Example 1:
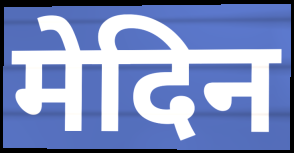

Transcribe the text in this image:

मेदिन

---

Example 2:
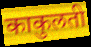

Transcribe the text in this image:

काकुलती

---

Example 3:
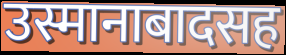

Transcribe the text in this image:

उस्मानाबादसह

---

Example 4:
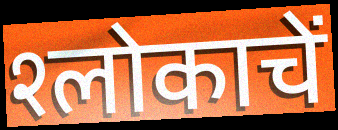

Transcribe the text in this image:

श्लोकाचें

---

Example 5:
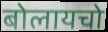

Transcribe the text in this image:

बोलायचो